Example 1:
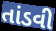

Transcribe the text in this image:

તાંડવી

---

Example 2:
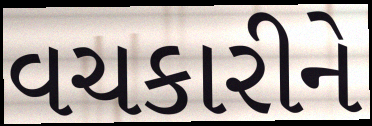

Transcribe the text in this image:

વચકારીને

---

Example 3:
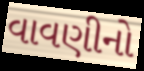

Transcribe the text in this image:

વાવણીનો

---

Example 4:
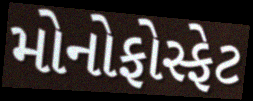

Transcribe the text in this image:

મોનોફોસ્ફેટ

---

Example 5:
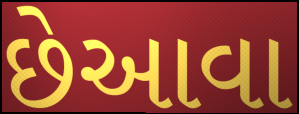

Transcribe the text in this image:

છેઆવા